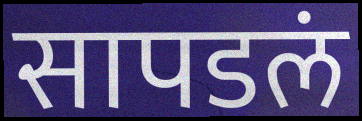
सापडलं